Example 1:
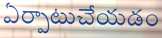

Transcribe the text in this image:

ఏర్పాటుచేయడం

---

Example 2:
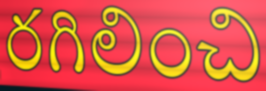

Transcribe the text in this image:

రగిలించి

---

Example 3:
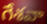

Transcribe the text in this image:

గేశవా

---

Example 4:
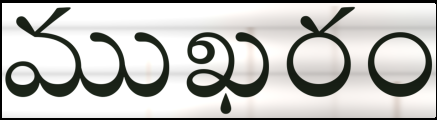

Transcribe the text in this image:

ముఖరం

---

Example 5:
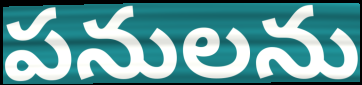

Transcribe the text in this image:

పనులను